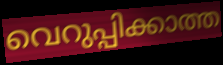
വെറുപ്പിക്കാത്ത